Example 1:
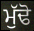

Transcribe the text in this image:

ਮੁੱਢੋ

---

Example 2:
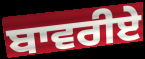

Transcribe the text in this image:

ਬਾਵਰੀਏ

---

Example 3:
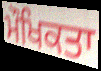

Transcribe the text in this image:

ਮੌਖਿਕਤਾ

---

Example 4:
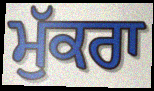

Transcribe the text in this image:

ਮੁੱਕਰਾ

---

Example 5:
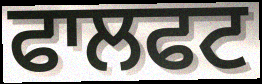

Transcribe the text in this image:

ਫਾਲਫਟ